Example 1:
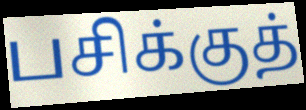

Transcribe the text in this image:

பசிக்குத்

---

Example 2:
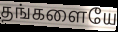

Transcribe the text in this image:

தங்களையே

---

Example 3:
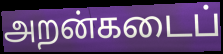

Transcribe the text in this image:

அறன்கடைப்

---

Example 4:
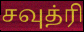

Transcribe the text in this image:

சவுத்ரி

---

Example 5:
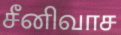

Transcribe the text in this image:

சீனிவாச